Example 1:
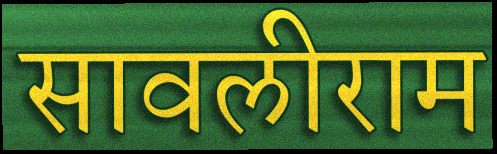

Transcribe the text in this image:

सावलीराम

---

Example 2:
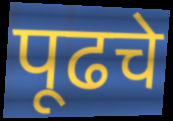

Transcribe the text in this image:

पूढचे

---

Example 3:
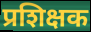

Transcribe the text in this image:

प्रशिक्षक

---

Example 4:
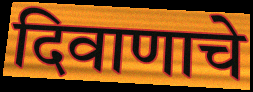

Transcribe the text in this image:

दिवाणाचे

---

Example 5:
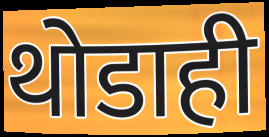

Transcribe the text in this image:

थोडाही